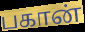
பகான்